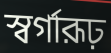
স্বর্গারূঢ়